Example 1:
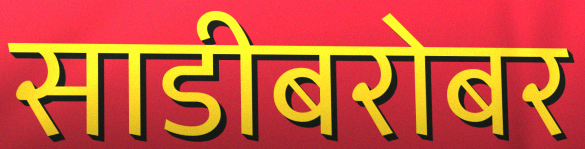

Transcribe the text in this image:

साडीबरोबर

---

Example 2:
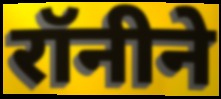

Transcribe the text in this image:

रॉनीने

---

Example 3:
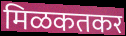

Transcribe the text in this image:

मिळकतकर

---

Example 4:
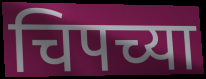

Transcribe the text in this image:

चिपच्या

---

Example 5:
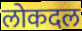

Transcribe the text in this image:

लोकदल